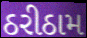
ઠરીઠામ